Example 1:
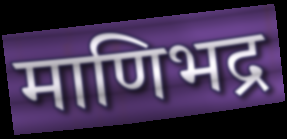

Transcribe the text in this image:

माणिभद्र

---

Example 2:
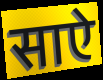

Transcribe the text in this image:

साऐ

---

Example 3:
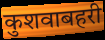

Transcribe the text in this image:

कुशवाबहरी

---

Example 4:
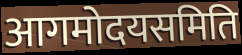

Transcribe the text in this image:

आगमोदयसमिति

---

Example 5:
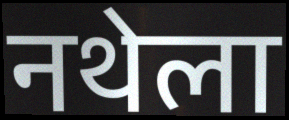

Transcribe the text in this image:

नथेला